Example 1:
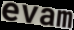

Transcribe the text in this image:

evam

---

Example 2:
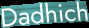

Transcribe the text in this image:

Dadhich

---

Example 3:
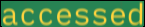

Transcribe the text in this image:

accessed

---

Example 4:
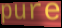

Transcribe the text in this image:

pure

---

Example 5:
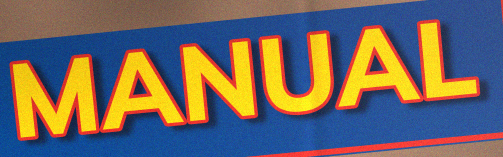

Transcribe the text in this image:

MANUAL